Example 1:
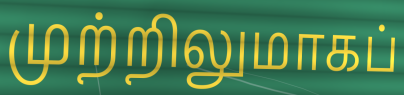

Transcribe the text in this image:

முற்றிலுமாகப்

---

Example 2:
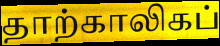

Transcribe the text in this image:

தாற்காலிகப்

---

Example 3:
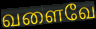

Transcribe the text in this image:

வளைவே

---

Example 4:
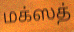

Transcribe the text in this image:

மக்ஸத்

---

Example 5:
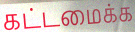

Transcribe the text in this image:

கட்டமைக்க